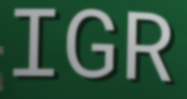
IGR